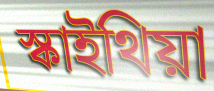
স্কাইথিয়া